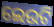
ଲେଉଟି